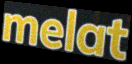
melat